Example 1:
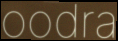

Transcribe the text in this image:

oodra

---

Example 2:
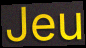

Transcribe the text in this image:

Jeu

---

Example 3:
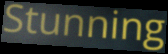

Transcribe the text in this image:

Stunning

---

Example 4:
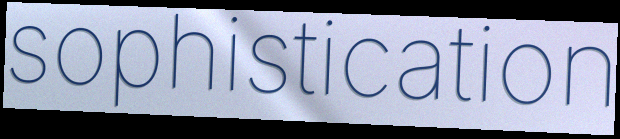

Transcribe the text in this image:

sophistication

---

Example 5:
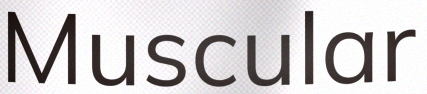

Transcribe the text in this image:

Muscular